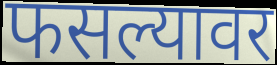
फसल्यावर